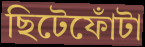
ছিটেফোঁটা